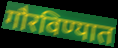
गौरविण्यात